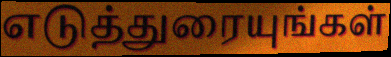
எடுத்துரையுங்கள்